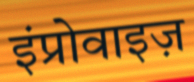
इंप्रोवाइज़